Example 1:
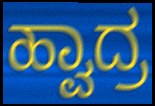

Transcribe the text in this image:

ಹ್ವಾದ್ರ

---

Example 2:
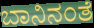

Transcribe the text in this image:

ಬಾನಿನಂತೆ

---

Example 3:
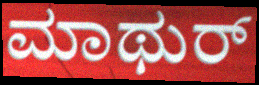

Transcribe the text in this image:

ಮಾಥುರ್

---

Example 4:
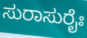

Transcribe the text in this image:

ಸುರಾಸುರೈಃ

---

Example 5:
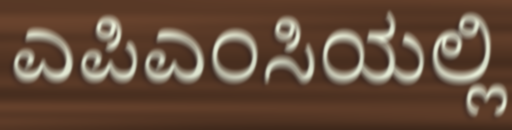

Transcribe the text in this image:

ಎಪಿಎಂಸಿಯಲ್ಲಿ